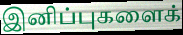
இனிப்புகளைக்